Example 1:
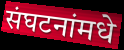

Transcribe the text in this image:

संघटनांमधे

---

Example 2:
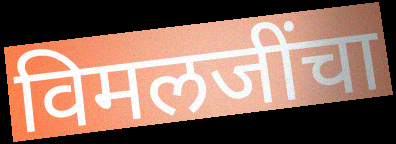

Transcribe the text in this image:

विमलजींचा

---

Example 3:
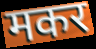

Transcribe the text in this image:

मकर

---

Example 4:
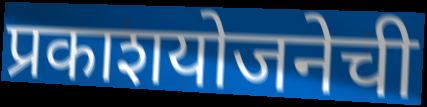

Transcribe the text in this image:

प्रकाशयोजनेची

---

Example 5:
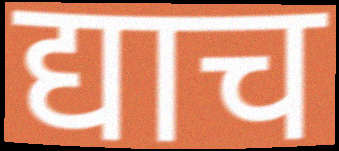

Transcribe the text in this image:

द्याच